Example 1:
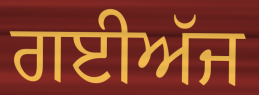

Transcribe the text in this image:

ਗਈਅੱਜ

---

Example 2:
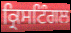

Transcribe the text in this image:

ਕ੍ਰਿਸਟਿੰਗਲ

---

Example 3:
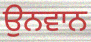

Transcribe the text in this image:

ਉਨਵਾਨ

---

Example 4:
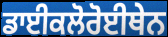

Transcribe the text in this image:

ਡਾਈਕਲੋਰੋਈਥੇਨ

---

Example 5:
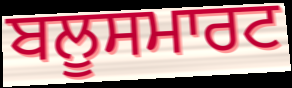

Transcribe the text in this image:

ਬਲੂਸਮਾਰਟ